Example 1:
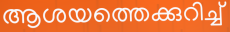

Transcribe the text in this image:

ആശയത്തെക്കുറിച്ച്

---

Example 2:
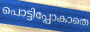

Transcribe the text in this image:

പൊട്ടിപ്പോകാതെ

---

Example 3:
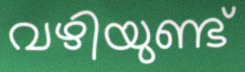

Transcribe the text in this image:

വഴിയുണ്ട്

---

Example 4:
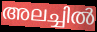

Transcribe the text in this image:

അലച്ചിൽ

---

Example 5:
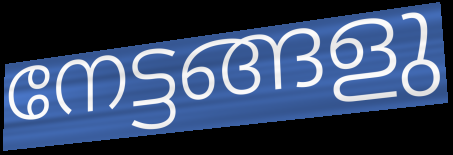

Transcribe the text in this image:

നേട്ടങ്ങളു